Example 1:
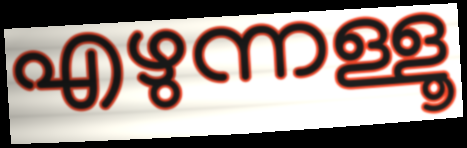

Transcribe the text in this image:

എഴുന്നള്ളൂ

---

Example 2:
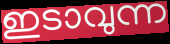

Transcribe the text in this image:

ഇടാവുന്ന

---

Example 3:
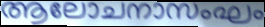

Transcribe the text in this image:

ആലോചനാസംഘം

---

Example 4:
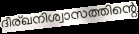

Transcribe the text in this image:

ദീര്ഖനിശ്വാസത്തിന്റെ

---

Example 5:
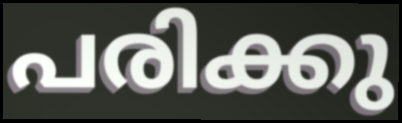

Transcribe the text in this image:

പരിക്കു